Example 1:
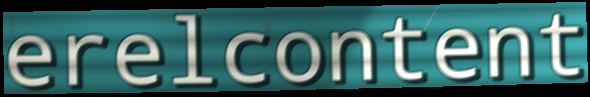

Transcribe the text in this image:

erelcontent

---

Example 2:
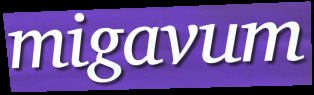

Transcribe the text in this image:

migavum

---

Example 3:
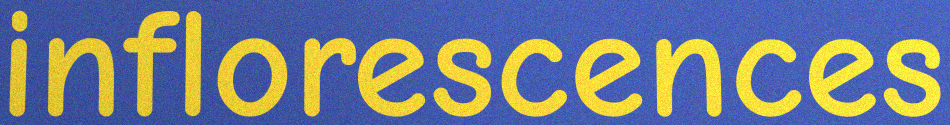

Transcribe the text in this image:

inflorescences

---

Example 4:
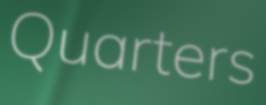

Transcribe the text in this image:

Quarters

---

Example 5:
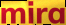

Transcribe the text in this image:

mira